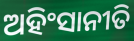
ଅହିଂସାନୀତି